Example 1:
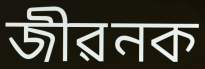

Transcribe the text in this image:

জীৱনক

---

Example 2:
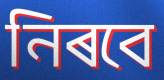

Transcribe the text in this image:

নিৰবে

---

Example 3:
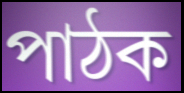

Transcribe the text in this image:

পাঠক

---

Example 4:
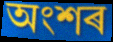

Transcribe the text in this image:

অংশৰ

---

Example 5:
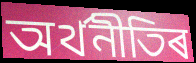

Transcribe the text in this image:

অৰ্থনীতিৰ